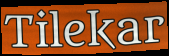
Tilekar